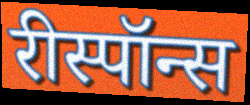
रीस्पॉन्स